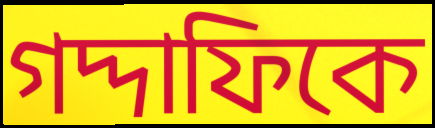
গদ্দাফিকে